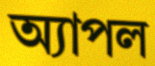
অ্যাপল